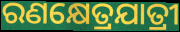
ରଣକ୍ଷେତ୍ରଯାତ୍ରୀ